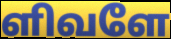
ளிவளே